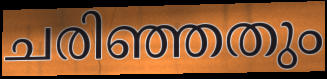
ചരിഞ്ഞതും